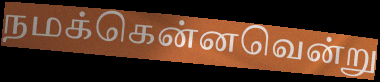
நமக்கென்னவென்று